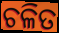
ଚଳିତ